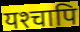
यश्चापि